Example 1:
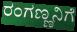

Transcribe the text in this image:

ರಂಗಣ್ಣನಿಗೆ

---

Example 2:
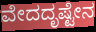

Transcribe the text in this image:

ವೇದದೃಷ್ಟೇನ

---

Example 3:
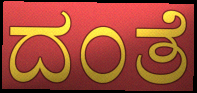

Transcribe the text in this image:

ದಂತೆ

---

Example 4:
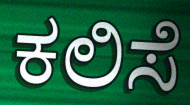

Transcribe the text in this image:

ಕಲಿಸೆ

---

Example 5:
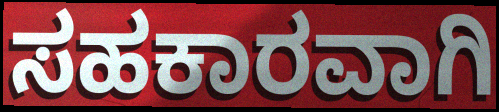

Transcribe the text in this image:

ಸಹಕಾರವಾಗಿ